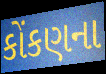
કોંકણના